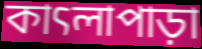
কাৎলাপাড়া